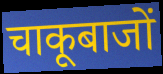
चाकूबाजों